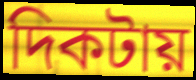
দিকটায়